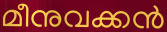
മീനുവക്കൻ